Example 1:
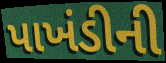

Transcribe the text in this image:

પાખંડીની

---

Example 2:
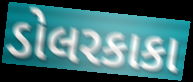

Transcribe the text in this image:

ડોલરકાકા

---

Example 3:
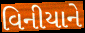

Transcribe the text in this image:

વિનીયાને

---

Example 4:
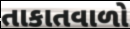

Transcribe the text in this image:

તાકાતવાળો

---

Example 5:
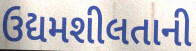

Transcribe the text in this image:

ઉદ્યમશીલતાની